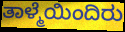
ತಾಳ್ಮೆಯಿಂದಿರು